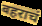
बहराचं